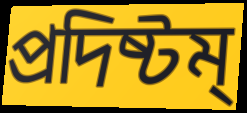
প্রদিষ্টম্